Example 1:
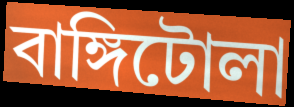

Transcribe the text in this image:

বাঙ্গিটোলা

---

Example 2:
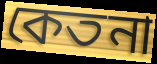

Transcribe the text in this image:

কেতনা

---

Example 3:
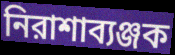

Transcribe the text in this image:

নিরাশাব্যঞ্জক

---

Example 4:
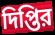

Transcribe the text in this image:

দিপ্তির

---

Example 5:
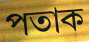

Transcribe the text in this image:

পতাক